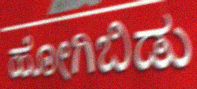
ಹೋಗಿಬಿಡು